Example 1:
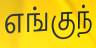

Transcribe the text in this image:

எங்குந்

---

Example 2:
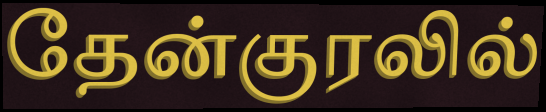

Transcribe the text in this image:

தேன்குரலில்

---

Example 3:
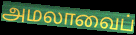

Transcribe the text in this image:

அமலாவைப்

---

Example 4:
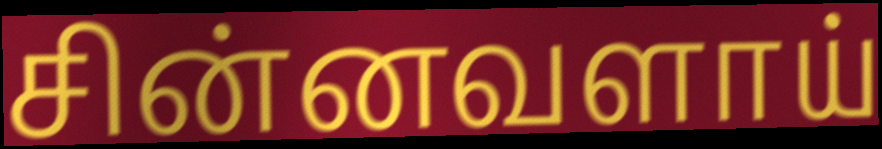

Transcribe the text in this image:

சின்னவளாய்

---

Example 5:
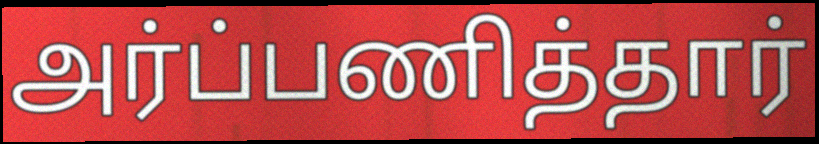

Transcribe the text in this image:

அர்ப்பணித்தார்